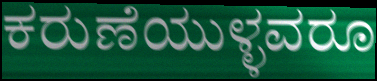
ಕರುಣೆಯುಳ್ಳವರೂ